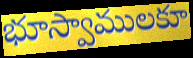
భూస్వాములకూ